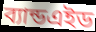
ব্যান্ডএইড